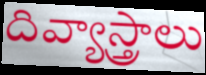
దివ్యాస్త్రాలు